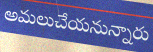
అమలుచేయనున్నారు